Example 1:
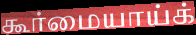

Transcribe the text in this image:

கூர்மையாய்க்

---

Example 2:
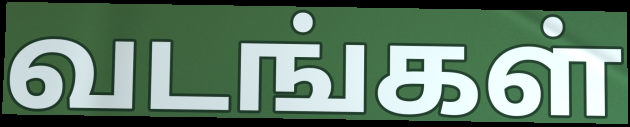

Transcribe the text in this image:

வடங்கள்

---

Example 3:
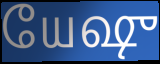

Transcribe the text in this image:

யேஷு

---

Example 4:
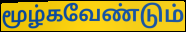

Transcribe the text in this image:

மூழ்கவேண்டும்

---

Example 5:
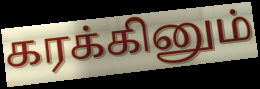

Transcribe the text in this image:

கரக்கினும்